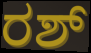
ರಶ್